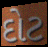
દોટ